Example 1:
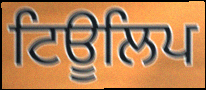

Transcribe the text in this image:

ਟਿਊਲਿਪ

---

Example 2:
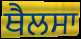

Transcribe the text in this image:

ਥੈਲਸਾ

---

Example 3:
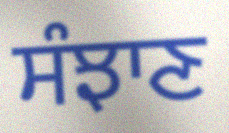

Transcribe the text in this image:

ਸੰਝਾਣ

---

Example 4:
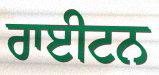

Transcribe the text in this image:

ਰਾਈਟਨ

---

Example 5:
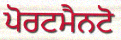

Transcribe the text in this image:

ਪੋਰਟਮੈਨਟੋ